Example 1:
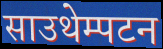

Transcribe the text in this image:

साउथेम्पटन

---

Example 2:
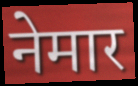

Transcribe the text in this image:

नेमार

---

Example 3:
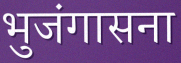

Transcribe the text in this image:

भुजंगासना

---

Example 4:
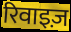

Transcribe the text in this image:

रिवाइज़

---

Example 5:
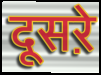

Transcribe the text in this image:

दूसऱे